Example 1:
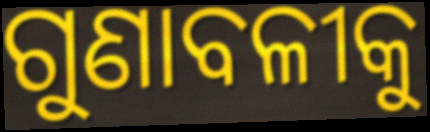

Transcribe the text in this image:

ଗୁଣାବଳୀକୁ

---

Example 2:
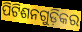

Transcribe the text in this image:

ପିଟିଶନଗୁଡ଼ିକର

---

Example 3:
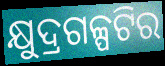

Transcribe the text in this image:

କ୍ଷୁଦ୍ରଗଳ୍ପଟିର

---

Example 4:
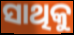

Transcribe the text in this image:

ସାଥିକୁ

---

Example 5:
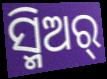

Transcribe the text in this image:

ସ୍ମିଅର୍